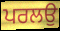
ਪਰਲਉ